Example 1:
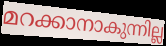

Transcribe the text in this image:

മറക്കാനാകുന്നില്ല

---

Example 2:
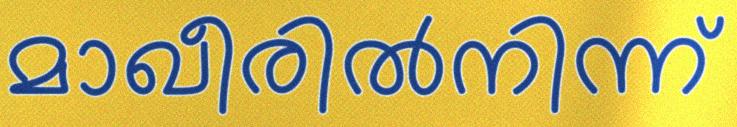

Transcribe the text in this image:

മാഖീരിൽനിന്ന്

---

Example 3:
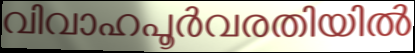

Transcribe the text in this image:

വിവാഹപൂർവരതിയിൽ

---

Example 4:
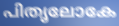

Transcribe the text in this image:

പിതൃലോകേ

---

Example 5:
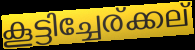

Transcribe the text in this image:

കൂട്ടിച്ചേര്ക്കല്